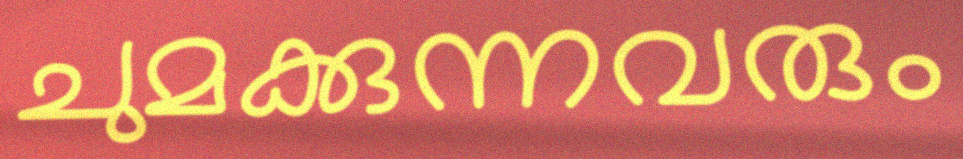
ചുമക്കുന്നവരും